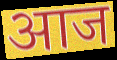
आज